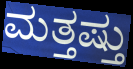
ಮತ್ತಷ್ತು